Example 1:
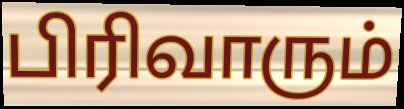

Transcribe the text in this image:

பிரிவாரும்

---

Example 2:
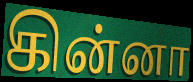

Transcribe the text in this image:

கின்னா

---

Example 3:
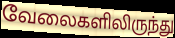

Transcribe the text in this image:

வேலைகளிலிருந்து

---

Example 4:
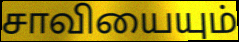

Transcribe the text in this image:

சாவியையும்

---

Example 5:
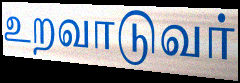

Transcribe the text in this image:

உறவாடுவர்